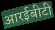
आरईबीटी